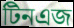
টিনএজ